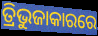
ତ୍ରିଭୁଜାକାରରେ